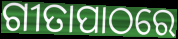
ଗୀତାପାଠରେ